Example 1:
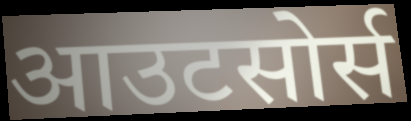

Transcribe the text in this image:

आउटसोर्स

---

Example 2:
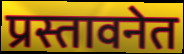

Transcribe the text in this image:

प्रस्तावनेत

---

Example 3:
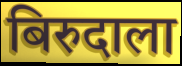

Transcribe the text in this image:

बिरुदाला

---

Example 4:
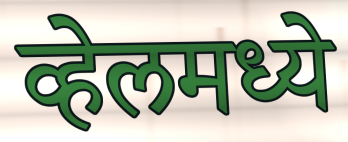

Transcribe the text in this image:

व्हेलमध्ये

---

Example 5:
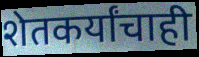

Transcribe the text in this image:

शेतकर्यांचाही